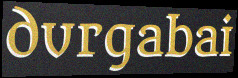
durgabai